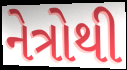
નેત્રોથી